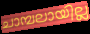
ചാമ്പലായില്ല